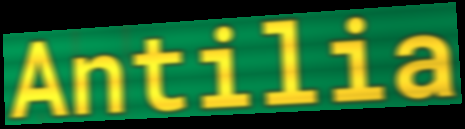
Antilia